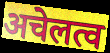
अचेलत्व